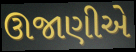
ઊજાણીએ